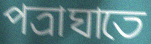
পত্রাঘাতে